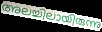
അലച്ചിലായിരുന്നു